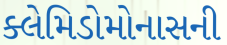
ક્લેમિડોમોનાસની